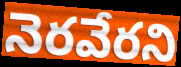
నెరవేరని